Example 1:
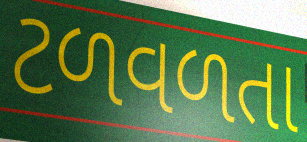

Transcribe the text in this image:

ટળવળતા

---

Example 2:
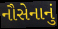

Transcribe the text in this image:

નૌસેનાનું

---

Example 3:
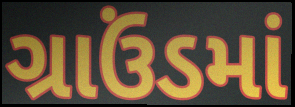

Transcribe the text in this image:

ગ્રાઉંડમાં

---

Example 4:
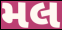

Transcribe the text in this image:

મલ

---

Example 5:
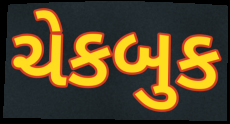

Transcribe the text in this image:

ચેકબુક